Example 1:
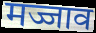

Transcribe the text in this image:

मज्जाव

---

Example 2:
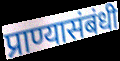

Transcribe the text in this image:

प्राण्यासंबंधी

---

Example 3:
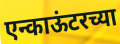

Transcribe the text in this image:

एन्काऊंटरच्या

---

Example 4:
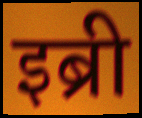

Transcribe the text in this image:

इब्री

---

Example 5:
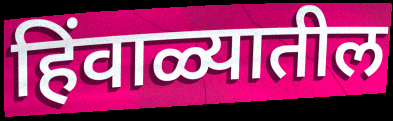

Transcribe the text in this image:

हिंवाळ्यातील